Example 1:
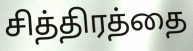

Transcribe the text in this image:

சித்திரத்தை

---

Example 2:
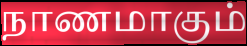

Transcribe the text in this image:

நாணமாகும்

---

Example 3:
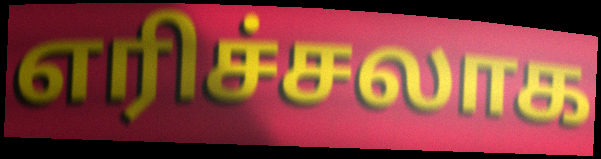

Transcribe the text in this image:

எரிச்சலாக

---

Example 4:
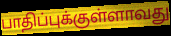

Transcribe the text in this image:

பாதிப்புக்குள்ளாவது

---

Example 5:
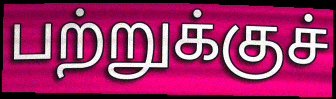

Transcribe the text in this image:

பற்றுக்குச்